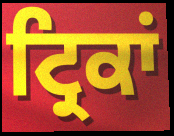
ਟ੍ਰਿਕਾਂ